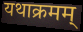
यथाक्रमम्